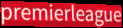
premierleague